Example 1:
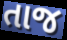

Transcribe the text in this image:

તાજ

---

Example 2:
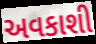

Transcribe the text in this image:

અવકાશી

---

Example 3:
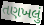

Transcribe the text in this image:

તણખલું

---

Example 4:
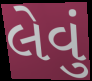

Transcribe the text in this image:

લેવું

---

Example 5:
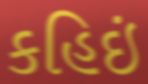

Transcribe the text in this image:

કહિઇં